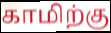
காமிற்கு